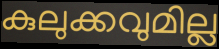
കുലുക്കവുമില്ല